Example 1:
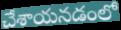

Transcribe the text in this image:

చేశాయనడంలో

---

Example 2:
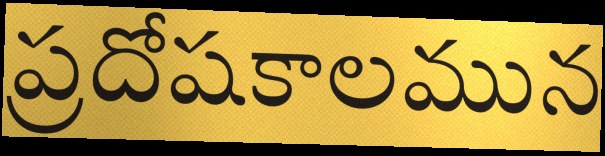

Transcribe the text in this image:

ప్రదోషకాలమున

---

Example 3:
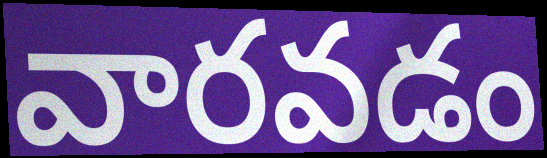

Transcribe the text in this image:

వారవడం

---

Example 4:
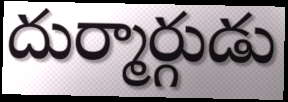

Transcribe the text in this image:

దుర్మార్గుడు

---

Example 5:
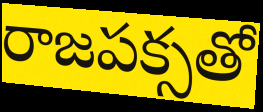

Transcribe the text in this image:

రాజపక్సతో